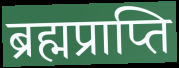
ब्रह्मप्राप्ति